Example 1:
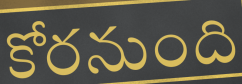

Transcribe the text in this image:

కోరనుంది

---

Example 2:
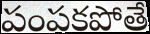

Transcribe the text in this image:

పంపకపోతే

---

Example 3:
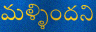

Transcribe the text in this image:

మళ్ళిందని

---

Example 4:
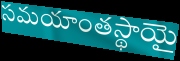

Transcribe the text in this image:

సమయాంతస్థాయై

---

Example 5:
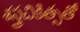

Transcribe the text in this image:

శస్త్రచికిత్సతో